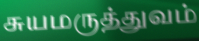
சுயமருத்துவம்